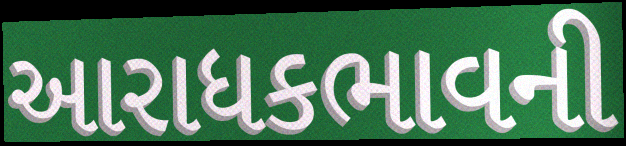
આરાધકભાવની